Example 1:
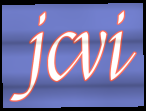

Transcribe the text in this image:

jcvi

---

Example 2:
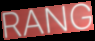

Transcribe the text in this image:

RANG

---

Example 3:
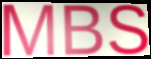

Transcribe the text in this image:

MBS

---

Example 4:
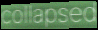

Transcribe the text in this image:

collapsed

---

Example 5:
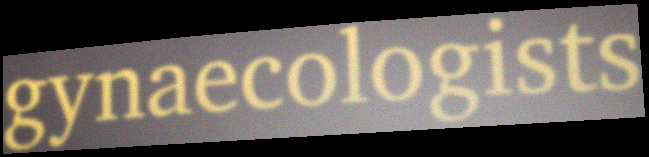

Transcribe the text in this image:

gynaecologists